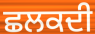
ਛਲਕਦੀ